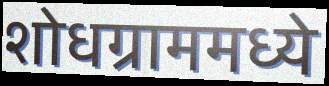
शोधग्राममध्ये